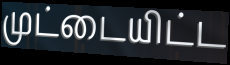
முட்டையிட்ட